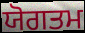
ਯੋਗਤਮ